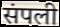
संपली